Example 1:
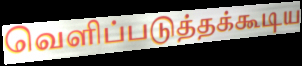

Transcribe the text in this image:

வெளிப்படுத்தக்கூடிய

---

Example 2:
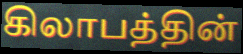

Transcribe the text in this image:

கிலாபத்தின்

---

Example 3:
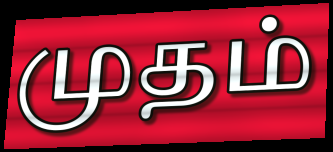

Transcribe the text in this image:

முதம்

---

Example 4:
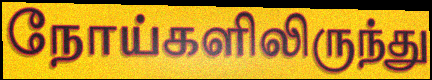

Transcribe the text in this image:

நோய்களிலிருந்து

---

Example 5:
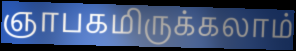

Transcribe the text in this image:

ஞாபகமிருக்கலாம்